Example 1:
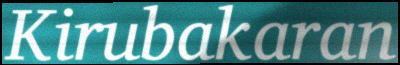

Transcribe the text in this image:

Kirubakaran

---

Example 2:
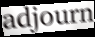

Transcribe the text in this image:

adjourn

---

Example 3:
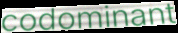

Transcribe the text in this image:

codominant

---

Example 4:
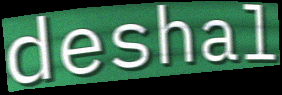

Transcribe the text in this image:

deshal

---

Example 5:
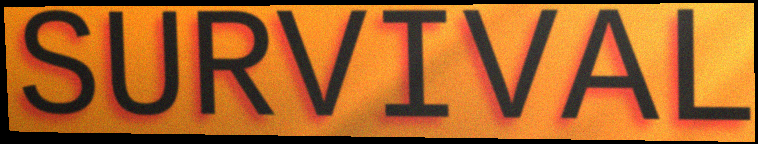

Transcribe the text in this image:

SURVIVAL